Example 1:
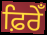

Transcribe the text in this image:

ਫ਼ਿਰੇਁ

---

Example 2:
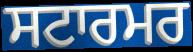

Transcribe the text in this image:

ਸਟਾਰਮਰ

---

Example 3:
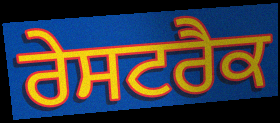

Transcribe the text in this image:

ਰੇਸਟਰੈਕ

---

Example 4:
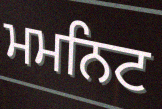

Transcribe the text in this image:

ਮਮਨਿਟ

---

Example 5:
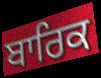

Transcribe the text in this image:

ਬਾਰਿਕ